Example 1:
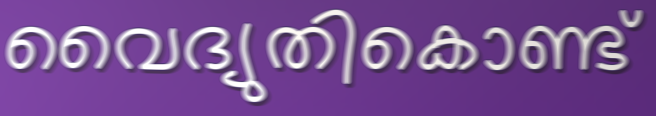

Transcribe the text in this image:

വൈദ്യുതികൊണ്ട്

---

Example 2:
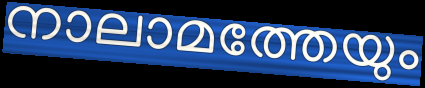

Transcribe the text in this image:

നാലാമത്തേയും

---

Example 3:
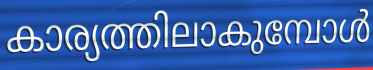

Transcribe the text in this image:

കാര്യത്തിലാകുമ്പോൾ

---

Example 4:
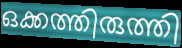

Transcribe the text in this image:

ഒക്കത്തിരുത്തി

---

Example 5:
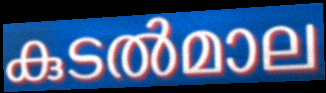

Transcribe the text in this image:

കുടൽമാല